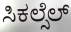
ಸಿಕಲ್ಸೆಲ್